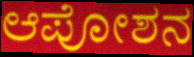
ಆಪೋಶನ